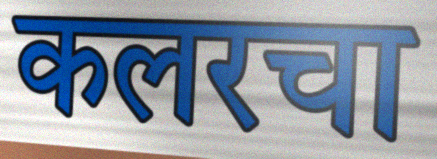
कलरचा